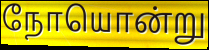
நோயொன்று